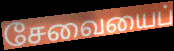
சேவையைப்